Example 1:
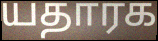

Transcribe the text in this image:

யதாரக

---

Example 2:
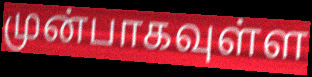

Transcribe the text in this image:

முன்பாகவுள்ள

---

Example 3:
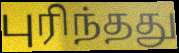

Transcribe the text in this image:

புரிந்தது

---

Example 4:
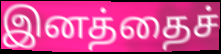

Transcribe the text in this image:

இனத்தைச்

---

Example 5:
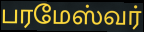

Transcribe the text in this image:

பரமேஸ்வர்